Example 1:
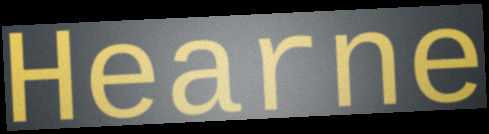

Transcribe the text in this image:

Hearne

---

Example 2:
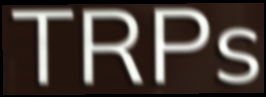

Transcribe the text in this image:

TRPs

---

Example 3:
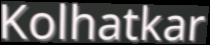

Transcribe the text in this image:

Kolhatkar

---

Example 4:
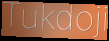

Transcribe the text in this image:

Tukdoji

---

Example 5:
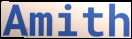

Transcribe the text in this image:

Amith